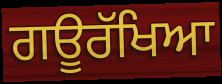
ਗਊਰੱਖਿਆ